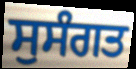
ਸੁਸੰਗਤ